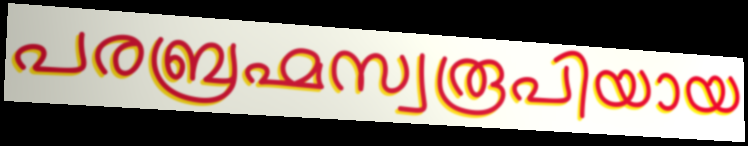
പരബ്രഹ്മസ്വരൂപിയായ